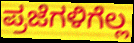
ಪ್ರಜೆಗಳಿಗೆಲ್ಲ